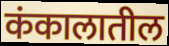
कंकालातील